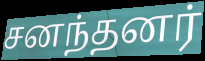
சனந்தனர்